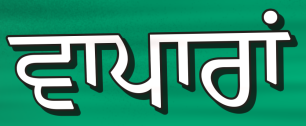
ਵਾਪਾਰਾਂ